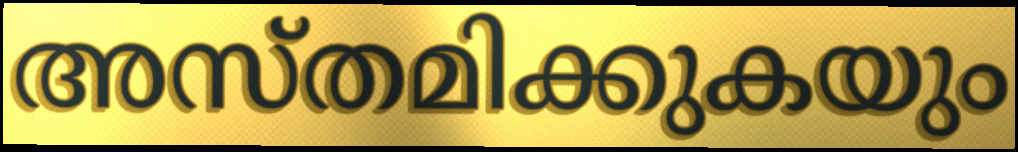
അസ്തമിക്കുകയും